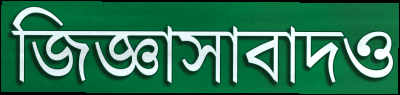
জিজ্ঞাসাবাদও